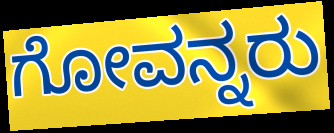
ಗೋವನ್ನರು